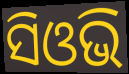
ସିଓଭି